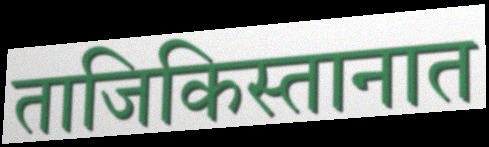
ताजिकिस्तानात